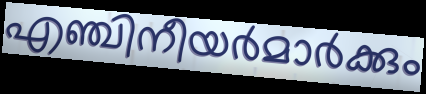
എഞ്ചിനീയർമാർക്കും